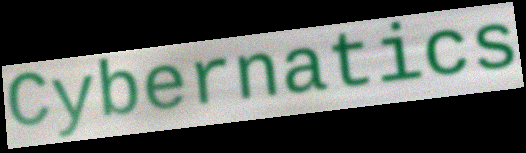
Cybernatics